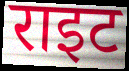
राइट